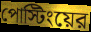
পোস্টিংয়ের